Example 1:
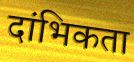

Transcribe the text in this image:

दांभिकता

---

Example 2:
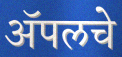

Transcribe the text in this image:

ॲपलचे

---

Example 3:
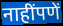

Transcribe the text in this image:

नाहींपणें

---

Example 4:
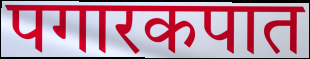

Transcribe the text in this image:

पगारकपात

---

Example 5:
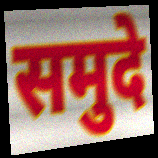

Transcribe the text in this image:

समुदे